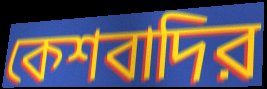
কেশবাদির